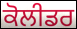
ਕੋਲੀਡਰ